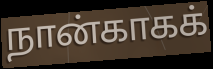
நான்காகக்